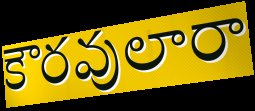
కౌరవులారా